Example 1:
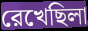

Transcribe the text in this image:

রেখেছিলা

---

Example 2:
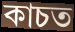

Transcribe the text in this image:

কাচত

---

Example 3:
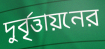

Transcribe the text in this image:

দুর্বৃত্তায়নের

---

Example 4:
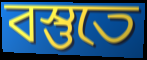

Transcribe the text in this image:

বস্তুতে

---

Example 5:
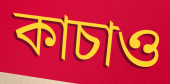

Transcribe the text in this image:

কাচাও